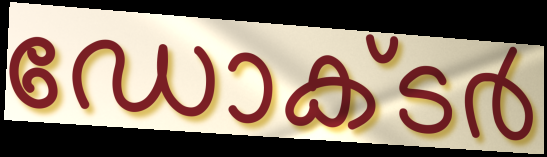
ഡോക്ടർ